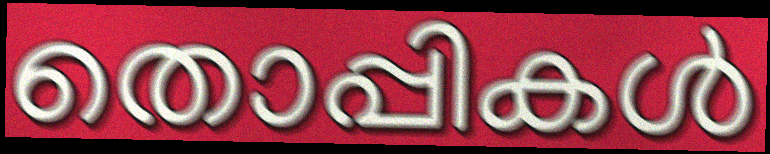
തൊപ്പികൾ